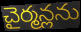
చైర్మన్లను